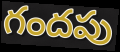
గందపు